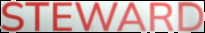
STEWARD